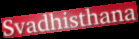
Svadhisthana